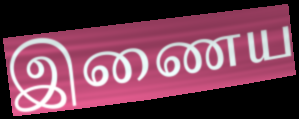
இணைய